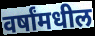
वर्षांमधील